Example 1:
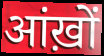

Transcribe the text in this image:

आंख़ों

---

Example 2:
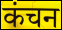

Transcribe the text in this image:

कंचन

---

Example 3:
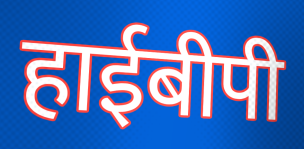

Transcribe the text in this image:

हाईबीपी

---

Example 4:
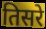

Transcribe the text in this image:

तिसरे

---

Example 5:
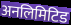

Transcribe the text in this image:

अनलिमिटिड